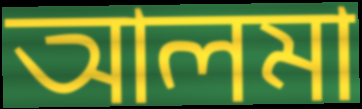
আলমা